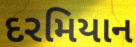
દરમિયાન